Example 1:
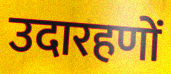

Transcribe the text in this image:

उदारहणों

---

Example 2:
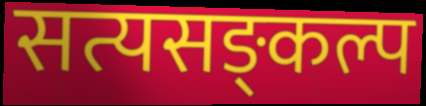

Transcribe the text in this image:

सत्यसङ्कल्प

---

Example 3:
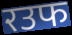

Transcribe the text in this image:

रउफ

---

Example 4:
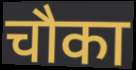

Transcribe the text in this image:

चौका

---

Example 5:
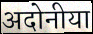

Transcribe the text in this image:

अदोनीया